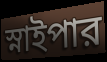
স্নাইপার